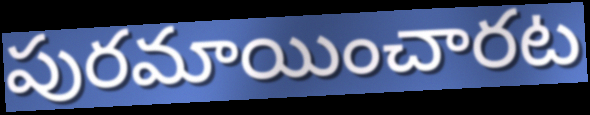
పురమాయించారట